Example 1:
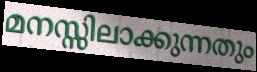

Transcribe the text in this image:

മനസ്സിലാക്കുന്നതും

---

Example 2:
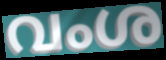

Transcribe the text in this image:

വംശ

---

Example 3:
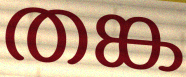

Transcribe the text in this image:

തങ്ക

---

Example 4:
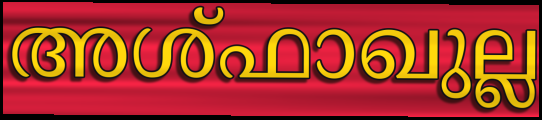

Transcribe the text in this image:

അശ്ഫാഖുല്ല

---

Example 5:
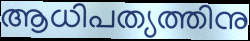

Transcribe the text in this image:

ആധിപത്യത്തിനു